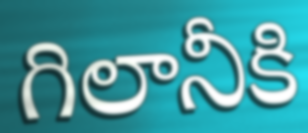
గిలానీకి